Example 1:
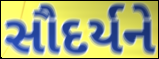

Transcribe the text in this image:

સૌદર્યને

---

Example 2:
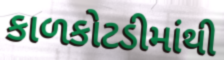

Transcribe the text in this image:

કાળકોટડીમાંથી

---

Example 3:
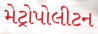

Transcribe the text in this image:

મેટ્રોપોલીટન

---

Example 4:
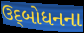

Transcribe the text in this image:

ઉદ્‌બોધનના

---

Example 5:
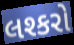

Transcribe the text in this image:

લશ્કરો